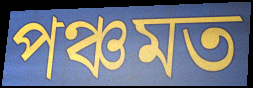
পঞ্চমত